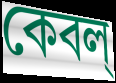
কেবল্